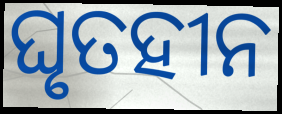
ଘୃତହୀନ